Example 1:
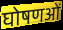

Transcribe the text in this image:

घोषणओं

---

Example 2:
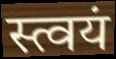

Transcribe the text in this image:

स्त्वयं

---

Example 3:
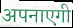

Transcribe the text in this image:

अपनाएगी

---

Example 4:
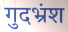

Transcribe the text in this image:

गुदभ्रंश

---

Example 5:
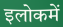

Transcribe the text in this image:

इलोकमें